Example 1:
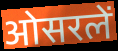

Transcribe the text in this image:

ओसरलें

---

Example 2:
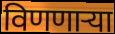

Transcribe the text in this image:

विणणाऱ्या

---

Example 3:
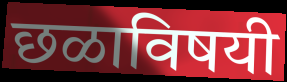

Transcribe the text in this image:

छळाविषयी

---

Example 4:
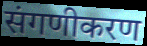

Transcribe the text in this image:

संगणीकरण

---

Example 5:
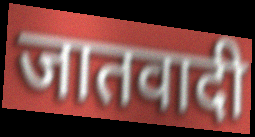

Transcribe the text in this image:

जातवादी